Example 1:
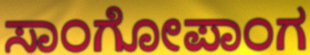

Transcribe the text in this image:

ಸಾಂಗೋಪಾಂಗ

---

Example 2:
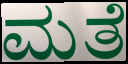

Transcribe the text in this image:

ಮತೆ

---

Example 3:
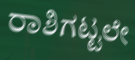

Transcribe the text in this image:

ರಾಶಿಗಟ್ಟಲೇ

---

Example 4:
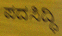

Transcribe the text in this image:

ಪದಸಿದ್ಧಿ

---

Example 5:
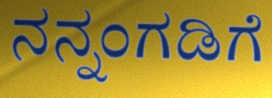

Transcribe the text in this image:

ನನ್ನಂಗಡಿಗೆ